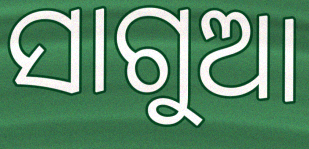
ସାଗୁଆ